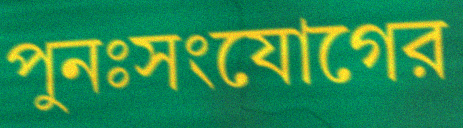
পুনঃসংযোগের